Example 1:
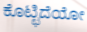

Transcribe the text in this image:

ಕೊಟ್ಟಿದೆಯೋ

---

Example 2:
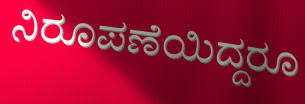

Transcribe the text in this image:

ನಿರೂಪಣೆಯಿದ್ದರೂ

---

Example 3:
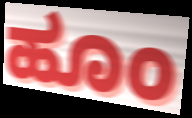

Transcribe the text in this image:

ಹೂಂ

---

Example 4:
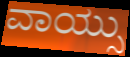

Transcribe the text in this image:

ವಾಯ್ಸು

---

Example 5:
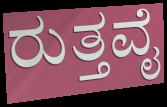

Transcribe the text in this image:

ರುತ್ತವೈ